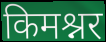
किमश्नर